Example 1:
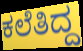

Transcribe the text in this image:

ಕಲೆತಿದ್ದ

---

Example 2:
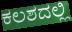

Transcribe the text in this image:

ಕಲಶದಲ್ಲಿ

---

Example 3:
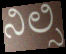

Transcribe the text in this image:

ನಿಲ್ಸಿ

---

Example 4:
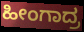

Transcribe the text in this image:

ಹೀಂಗಾದ್ರ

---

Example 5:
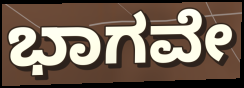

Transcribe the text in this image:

ಭಾಗವೇ